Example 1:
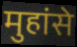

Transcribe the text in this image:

मुहांसे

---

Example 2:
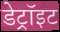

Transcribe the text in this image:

डेट्रॉइट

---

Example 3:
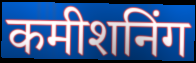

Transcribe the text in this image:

कमीशनिंग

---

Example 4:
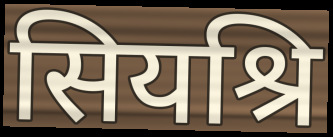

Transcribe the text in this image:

सियश्रि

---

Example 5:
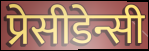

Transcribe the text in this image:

प्रेसीडेन्सी